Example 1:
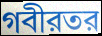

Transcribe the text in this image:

গবীরতর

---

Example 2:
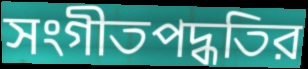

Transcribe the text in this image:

সংগীতপদ্ধতির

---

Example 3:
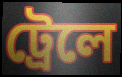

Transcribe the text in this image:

ট্রেলে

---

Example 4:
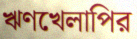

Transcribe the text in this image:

ঋণখেলাপির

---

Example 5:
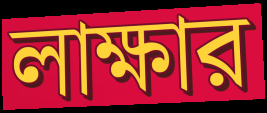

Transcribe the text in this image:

লাক্ষার